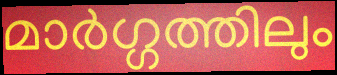
മാർഗ്ഗത്തിലും